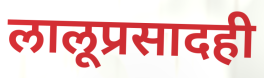
लालूप्रसादही